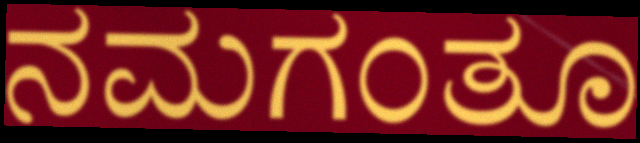
ನಮಗಂತೂ